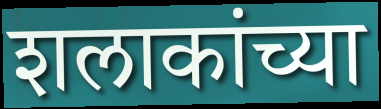
शलाकांच्या